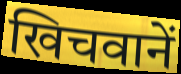
खिचवानें